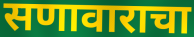
सणावाराचा